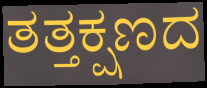
ತತ್ತಕ್ಷಣದ